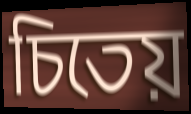
চিতেয়